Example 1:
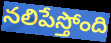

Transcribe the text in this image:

నలిపేస్తోంది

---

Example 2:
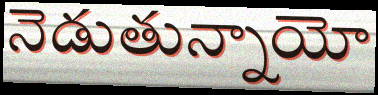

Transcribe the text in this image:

నెడుతున్నాయో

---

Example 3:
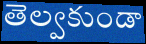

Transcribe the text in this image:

తెల్వకుండా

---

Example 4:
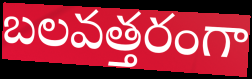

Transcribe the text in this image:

బలవత్తరంగా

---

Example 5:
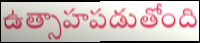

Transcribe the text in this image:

ఉత్సాహపడుతోంది